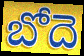
బోదె